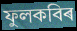
ফুলকবিৰ